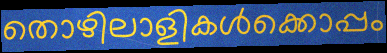
തൊഴിലാളികൾക്കൊപ്പം